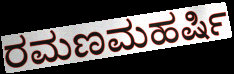
ರಮಣಮಹರ್ಷಿ